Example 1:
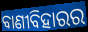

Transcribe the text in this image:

ବାଣୀବିହାରର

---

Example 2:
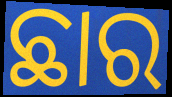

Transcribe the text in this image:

ଛାର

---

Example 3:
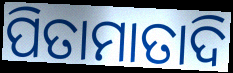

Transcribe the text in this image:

ପିତାମାତାଦି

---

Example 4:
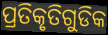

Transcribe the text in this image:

ପ୍ରତିକୃତିଗୁଡିକ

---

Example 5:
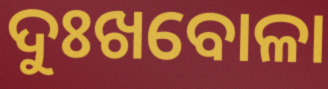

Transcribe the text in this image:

ଦୁଃଖବୋଳା